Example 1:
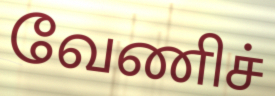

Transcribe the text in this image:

வேணிச்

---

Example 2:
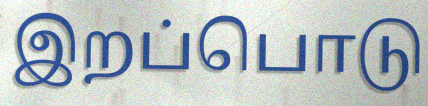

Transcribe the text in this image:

இறப்பொடு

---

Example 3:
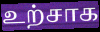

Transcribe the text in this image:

உற்சாக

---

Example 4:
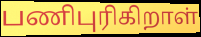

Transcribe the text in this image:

பணிபுரிகிறாள்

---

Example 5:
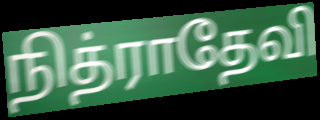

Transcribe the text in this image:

நித்ராதேவி